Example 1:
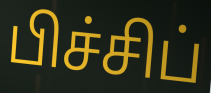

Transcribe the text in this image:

பிச்சிப்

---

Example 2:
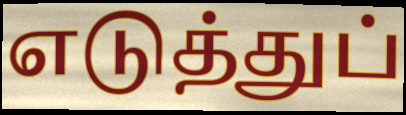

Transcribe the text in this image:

எடுத்துப்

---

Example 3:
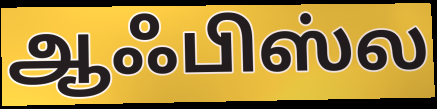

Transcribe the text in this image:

ஆஃபிஸ்ல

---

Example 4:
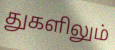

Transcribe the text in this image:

துகளிலும்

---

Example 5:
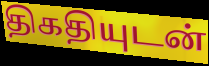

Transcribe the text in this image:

திகதியுடன்